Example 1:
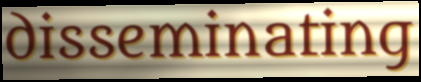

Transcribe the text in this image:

disseminating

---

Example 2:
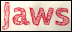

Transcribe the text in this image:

Jaws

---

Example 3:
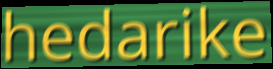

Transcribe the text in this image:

hedarike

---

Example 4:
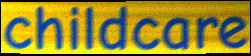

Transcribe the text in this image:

childcare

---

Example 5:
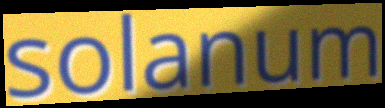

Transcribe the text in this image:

solanum